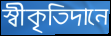
স্বীকৃতিদানে